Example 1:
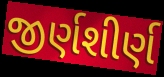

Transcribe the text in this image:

જીર્ણશીર્ણ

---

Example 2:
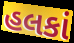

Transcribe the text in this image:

હલકાં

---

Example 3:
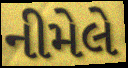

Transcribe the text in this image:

નીમેલે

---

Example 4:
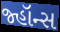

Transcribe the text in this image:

જ્હૉન્સ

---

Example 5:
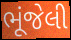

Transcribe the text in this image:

ભૂંજેલી